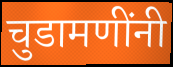
चुडामणींनी